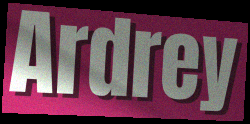
Ardrey